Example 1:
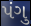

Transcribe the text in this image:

પંગુ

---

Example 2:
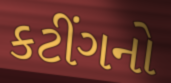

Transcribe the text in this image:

કટીંગનો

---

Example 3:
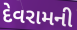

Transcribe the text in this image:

દેવરામની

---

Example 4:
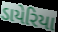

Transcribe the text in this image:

ડાયેરિયા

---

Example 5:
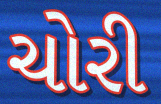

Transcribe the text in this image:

ચોરી